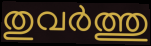
തുവർത്തു